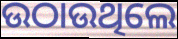
ଉଠାଉଥିଲେ